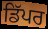
ਡਿੱਪਰ